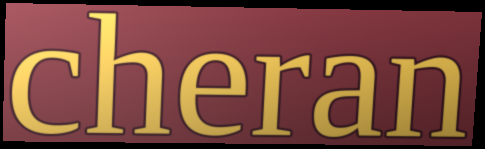
cheran